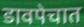
डावपेचात